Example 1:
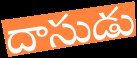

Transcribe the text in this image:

దాసుడు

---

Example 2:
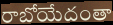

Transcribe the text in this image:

రాబోయేదంతా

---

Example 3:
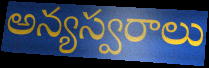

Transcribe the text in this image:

అన్యస్వరాలు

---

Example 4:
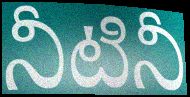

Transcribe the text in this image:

నీటినీ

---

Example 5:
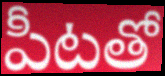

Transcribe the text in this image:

పీటతో